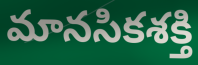
మానసికశక్తి